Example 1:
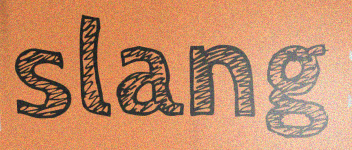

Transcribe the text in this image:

slang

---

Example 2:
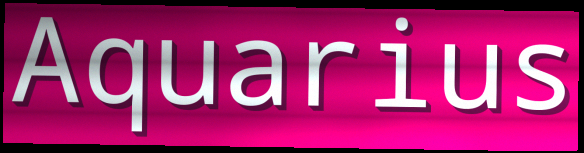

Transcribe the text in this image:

Aquarius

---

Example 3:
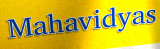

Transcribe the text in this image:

Mahavidyas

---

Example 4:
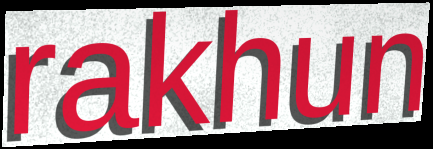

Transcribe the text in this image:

rakhun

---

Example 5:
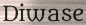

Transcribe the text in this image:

Diwase